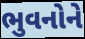
ભુવનોને